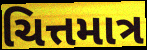
ચિત્તમાત્ર